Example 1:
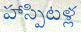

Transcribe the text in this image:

హాస్పిటళ్ల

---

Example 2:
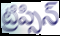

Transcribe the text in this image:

ట్రిప్సిన్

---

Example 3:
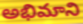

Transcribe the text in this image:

అభిమాని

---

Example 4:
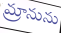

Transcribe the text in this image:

మ్రానును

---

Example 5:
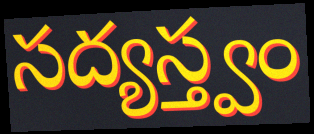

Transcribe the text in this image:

సద్యస్త్వం